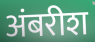
अंबरीश